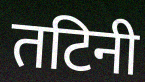
तटिनी